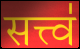
सत्त्व॑